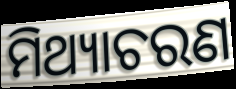
ମିଥ୍ୟାଚରଣ